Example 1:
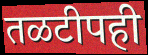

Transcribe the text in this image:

तळटीपही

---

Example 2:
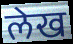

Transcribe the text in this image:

लेख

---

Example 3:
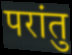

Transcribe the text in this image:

परांतु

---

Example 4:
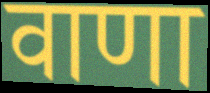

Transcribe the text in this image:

वाणा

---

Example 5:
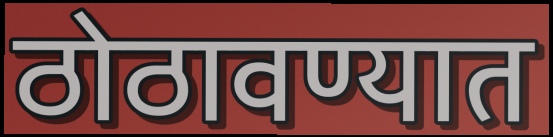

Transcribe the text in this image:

ठोठावण्यात